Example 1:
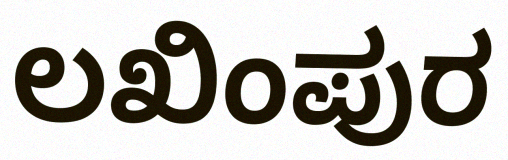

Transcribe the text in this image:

ಲಖಿಂಪುರ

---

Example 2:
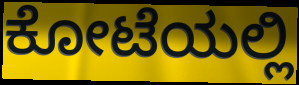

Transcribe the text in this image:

ಕೋಟೆಯಲ್ಲಿ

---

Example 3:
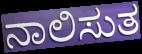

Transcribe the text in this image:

ನಾಲಿಸುತ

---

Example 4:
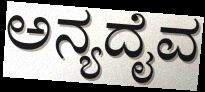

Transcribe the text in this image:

ಅನ್ಯದೈವ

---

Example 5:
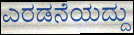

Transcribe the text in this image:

ಎರಡನೆಯದ್ದು